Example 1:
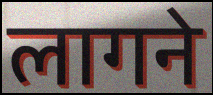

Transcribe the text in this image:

लागने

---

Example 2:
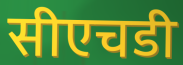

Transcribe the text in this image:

सीएचडी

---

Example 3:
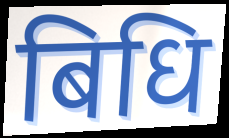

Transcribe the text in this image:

बिधि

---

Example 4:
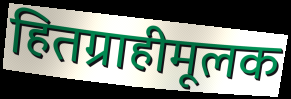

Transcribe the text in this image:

हितग्राहीमूलक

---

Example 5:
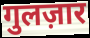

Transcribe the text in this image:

गुलज़ार